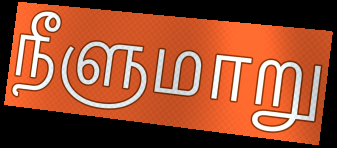
நீளுமாறு